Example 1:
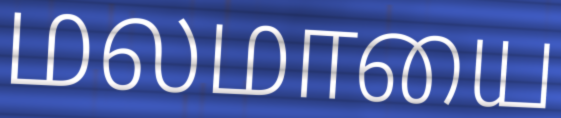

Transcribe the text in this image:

மலமாயை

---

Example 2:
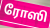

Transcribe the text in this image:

ரோஸி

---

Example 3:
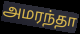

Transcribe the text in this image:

அமரந்தா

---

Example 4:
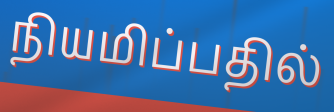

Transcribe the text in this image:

நியமிப்பதில்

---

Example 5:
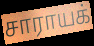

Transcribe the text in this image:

சாராயக்